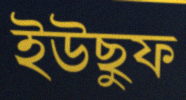
ইউছুফ